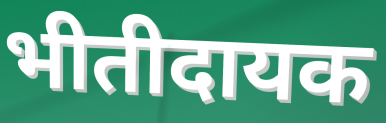
भीतीदायक